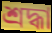
শ্ৰদ্ধা